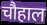
चौहाल